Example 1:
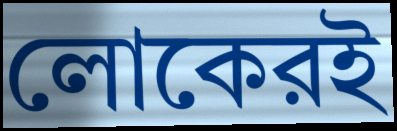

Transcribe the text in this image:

লোকেরই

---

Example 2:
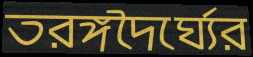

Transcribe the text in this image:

তরঙ্গদৈর্ঘ্যের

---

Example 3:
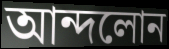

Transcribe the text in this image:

আন্দলোন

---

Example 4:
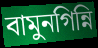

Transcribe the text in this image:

বামুনগিন্নি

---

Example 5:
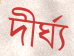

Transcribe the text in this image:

দীর্ঘ্য